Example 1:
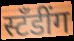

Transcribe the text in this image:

स्टँडींग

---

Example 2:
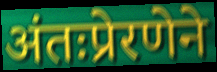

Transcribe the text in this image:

अंतःप्रेरणेने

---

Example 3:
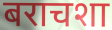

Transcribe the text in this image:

बराचशा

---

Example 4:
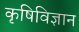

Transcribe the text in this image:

कृषिविज्ञान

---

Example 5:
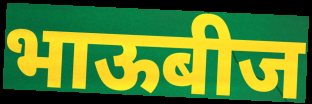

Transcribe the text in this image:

भाऊबीज